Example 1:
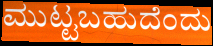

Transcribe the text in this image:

ಮುಟ್ಟಬಹುದೆಂದು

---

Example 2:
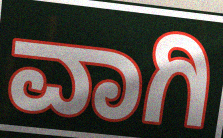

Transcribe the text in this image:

ವಾಗಿ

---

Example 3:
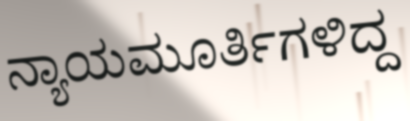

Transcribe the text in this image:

ನ್ಯಾಯಮೂರ್ತಿಗಳಿದ್ದ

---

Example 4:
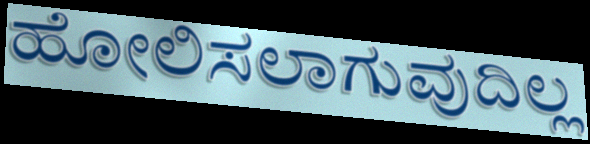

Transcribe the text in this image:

ಹೋಲಿಸಲಾಗುವುದಿಲ್ಲ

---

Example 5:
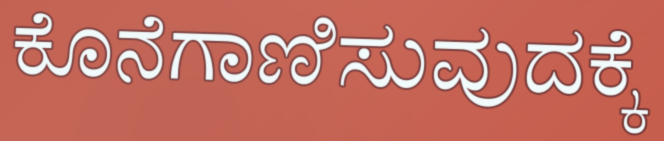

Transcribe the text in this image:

ಕೊನೆಗಾಣಿಸುವುದಕ್ಕೆ